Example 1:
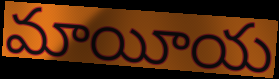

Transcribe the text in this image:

మాయీయ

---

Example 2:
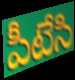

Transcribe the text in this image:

పీటేసి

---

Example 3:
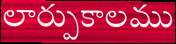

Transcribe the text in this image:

లార్పుకాలము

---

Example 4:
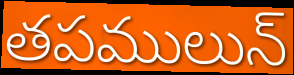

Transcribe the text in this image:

తపములున్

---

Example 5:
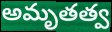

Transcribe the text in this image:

అమృతత్వ